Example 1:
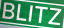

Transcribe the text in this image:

BLITZ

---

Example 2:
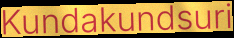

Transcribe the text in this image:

Kundakundsuri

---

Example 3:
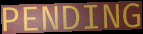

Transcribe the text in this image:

PENDING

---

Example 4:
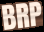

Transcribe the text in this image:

BRP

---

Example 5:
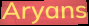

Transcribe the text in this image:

Aryans